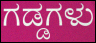
ಗಡ್ಡಗಳು